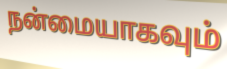
நன்மையாகவும்